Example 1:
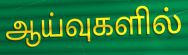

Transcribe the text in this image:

ஆய்வுகளில்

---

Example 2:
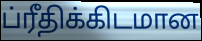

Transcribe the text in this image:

ப்ரீதிக்கிடமான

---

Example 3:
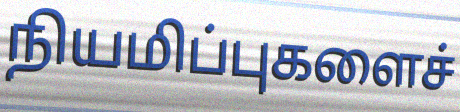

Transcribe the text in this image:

நியமிப்புகளைச்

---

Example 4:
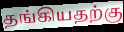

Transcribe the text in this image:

தங்கியதற்கு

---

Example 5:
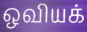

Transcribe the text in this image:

ஒவியக்